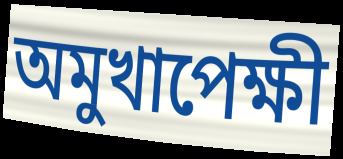
অমুখাপেক্ষী